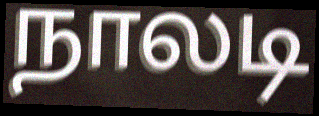
நாலடி